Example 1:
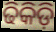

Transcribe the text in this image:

ଢିକିଡ଼ି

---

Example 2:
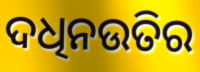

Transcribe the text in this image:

ଦଧିନଉତିର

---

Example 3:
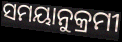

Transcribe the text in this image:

ସମୟାନୁକ୍ରମୀ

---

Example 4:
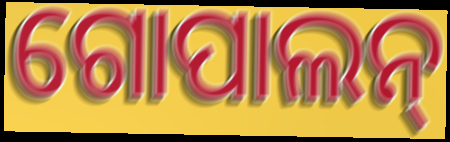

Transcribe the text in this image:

ଗୋପାଲନ୍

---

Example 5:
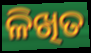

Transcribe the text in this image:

ଳିଖିତ